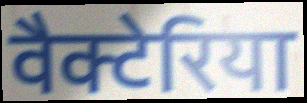
वैक्टेरिया